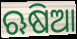
ଋଷିଆ